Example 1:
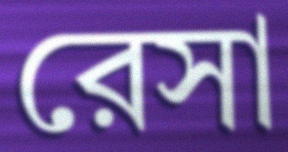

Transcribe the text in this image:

রেসা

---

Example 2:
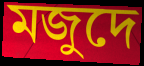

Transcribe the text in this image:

মজুদে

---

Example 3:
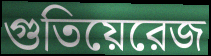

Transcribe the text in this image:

গুতিয়েরেজ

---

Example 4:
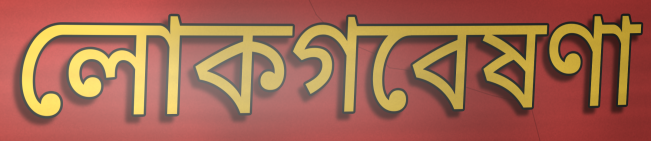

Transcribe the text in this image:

লোকগবেষণা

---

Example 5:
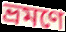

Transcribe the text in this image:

ভ্রমণে